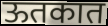
ऊतकात